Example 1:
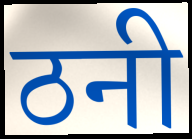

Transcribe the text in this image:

ठनी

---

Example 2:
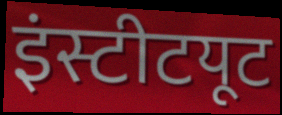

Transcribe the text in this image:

इंस्‍टीटयूट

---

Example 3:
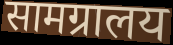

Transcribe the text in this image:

सामग्रालय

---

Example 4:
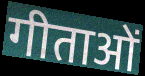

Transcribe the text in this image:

गीताओं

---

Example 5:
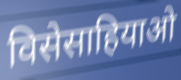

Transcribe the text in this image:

विसेसाहियाओ